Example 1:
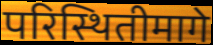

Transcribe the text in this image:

परिस्थितीमागे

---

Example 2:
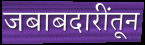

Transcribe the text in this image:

जबाबदारींतून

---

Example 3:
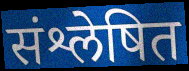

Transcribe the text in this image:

संश्लेषित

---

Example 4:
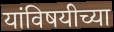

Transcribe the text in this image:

यांविषयीच्या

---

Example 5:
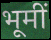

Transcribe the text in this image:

भूमीं